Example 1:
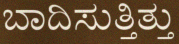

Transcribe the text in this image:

ಬಾದಿಸುತ್ತಿತ್ತು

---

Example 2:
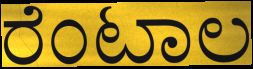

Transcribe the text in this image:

ರೆಂಟಾಲ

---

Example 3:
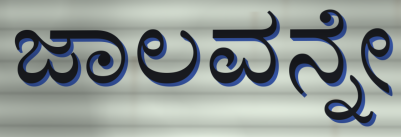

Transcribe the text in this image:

ಜಾಲವನ್ನೇ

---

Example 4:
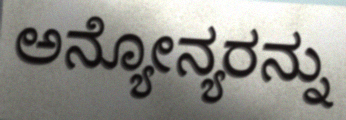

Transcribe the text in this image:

ಅನ್ಯೋನ್ಯರನ್ನು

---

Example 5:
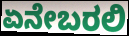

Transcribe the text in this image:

ಏನೇಬರಲಿ